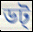
ডট্